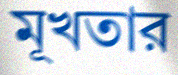
মূখতার